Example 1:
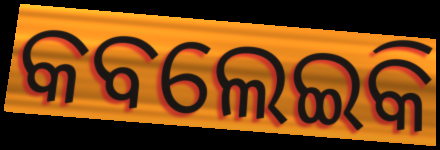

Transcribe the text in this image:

କବଲେଇକି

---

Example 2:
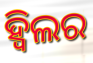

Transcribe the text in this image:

ହ୍ଵିଲର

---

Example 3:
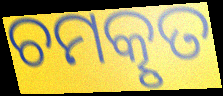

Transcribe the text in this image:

ଚମତ୍କୃତ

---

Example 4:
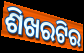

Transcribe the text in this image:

ଶିଖରଟିର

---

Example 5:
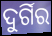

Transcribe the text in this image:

ଦୁର୍ଗିର